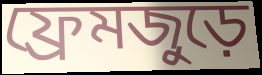
ফ্রেমজুড়ে